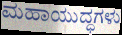
ಮಹಾಯುದ್ಧಗಳು